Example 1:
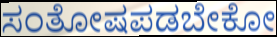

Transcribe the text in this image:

ಸಂತೋಷಪಡಬೇಕೋ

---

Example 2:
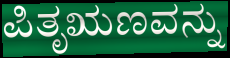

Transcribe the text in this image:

ಪಿತೃಋಣವನ್ನು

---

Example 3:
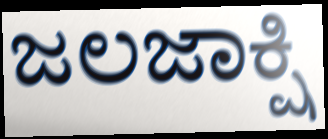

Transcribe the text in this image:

ಜಲಜಾಕ್ಷಿ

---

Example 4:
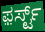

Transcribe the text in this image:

ಫ಼ರ್ಸ್ಟ್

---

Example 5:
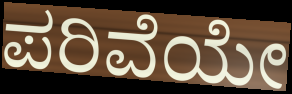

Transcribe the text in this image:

ಪರಿವೆಯೇ